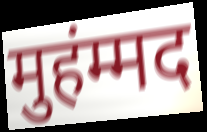
मुहंम्मद